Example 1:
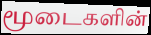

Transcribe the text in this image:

மூடைகளின்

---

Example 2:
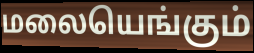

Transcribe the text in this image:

மலையெங்கும்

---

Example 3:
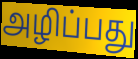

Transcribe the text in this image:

அழிப்பது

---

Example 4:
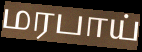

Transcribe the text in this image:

மரபாய்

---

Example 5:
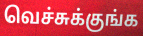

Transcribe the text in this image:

வெச்சுக்குங்க